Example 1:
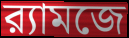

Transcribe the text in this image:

র‍্যামজে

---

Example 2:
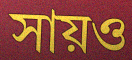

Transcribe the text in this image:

সায়ও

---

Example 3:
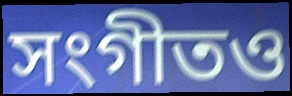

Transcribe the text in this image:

সংগীতও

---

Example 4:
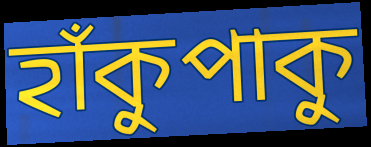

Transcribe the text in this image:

হাঁকুপাকু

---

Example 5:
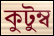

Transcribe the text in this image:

কুটুম্ব